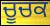
ਚੂਚਕ